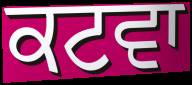
ਕਟਵਾ